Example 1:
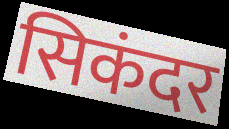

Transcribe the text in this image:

सिकंदर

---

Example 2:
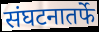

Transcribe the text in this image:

संघटनातर्फे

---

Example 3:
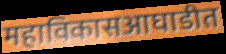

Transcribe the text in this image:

महाविकासआघाडीत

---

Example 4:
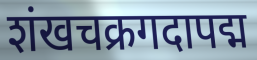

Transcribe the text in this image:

शंखचक्रगदापद्म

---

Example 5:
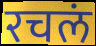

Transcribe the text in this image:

रचलं